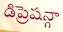
డిప్రెషన్గా